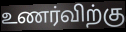
உணர்விற்கு